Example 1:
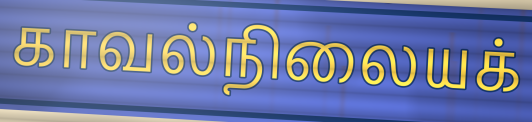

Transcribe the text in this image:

காவல்நிலையக்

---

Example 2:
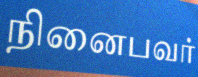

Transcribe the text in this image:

நினைபவர்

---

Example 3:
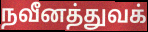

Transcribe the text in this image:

நவீனத்துவக்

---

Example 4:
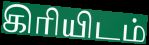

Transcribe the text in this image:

கிரியிடம்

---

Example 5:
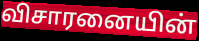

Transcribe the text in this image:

விசாரனையின்